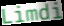
Limdi